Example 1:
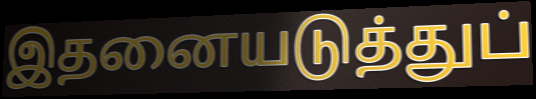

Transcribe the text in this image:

இதனையடுத்துப்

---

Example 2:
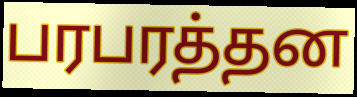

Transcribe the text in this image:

பரபரத்தன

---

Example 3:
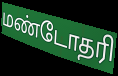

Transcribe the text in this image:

மண்டோதரி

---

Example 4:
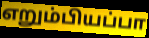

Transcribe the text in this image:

எறும்பியப்பா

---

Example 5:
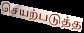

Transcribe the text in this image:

செயற்படுத்த